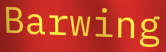
Barwing